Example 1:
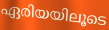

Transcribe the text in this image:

ഏരിയയിലൂടെ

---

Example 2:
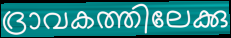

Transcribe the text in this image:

ദ്രാവകത്തിലേക്കു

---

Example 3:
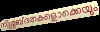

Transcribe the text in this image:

നിശ്ശബ്ദതകളൊക്കെയും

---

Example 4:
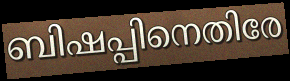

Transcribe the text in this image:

ബിഷപ്പിനെതിരേ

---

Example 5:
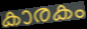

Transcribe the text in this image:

കാരകം